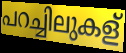
പറച്ചിലുകള്